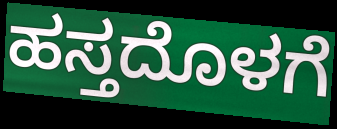
ಹಸ್ತದೊಳಗೆ